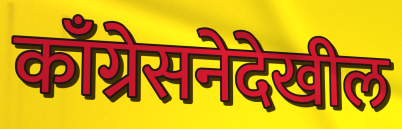
काँग्रेसनेदेखील